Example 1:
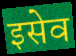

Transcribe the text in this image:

इसेव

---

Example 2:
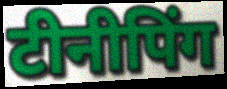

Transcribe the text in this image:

टीनीपिंग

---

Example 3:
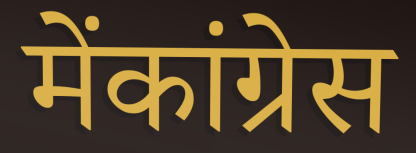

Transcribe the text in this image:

मेंकांग्रेस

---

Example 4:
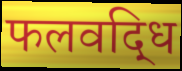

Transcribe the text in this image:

फलवद्धि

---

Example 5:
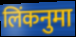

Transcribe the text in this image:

लिंकनुमा